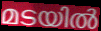
മടയിൽ